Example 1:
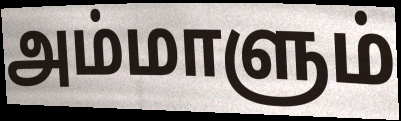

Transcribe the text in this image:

அம்மாளும்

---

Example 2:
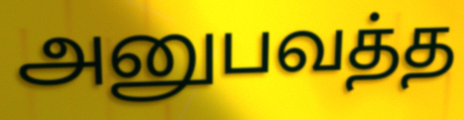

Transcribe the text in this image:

அனுபவத்த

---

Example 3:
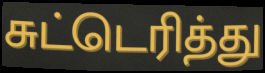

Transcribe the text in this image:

சுட்டெரித்து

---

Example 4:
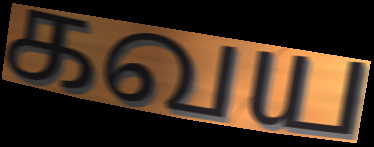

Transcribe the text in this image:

கவய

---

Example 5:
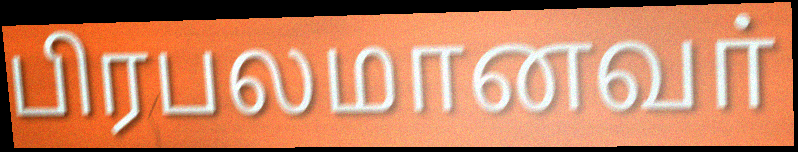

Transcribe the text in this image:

பிரபலமானவர்